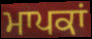
ਮਾਪਕਾਂ